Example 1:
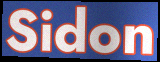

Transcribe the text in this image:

Sidon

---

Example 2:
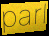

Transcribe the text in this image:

parl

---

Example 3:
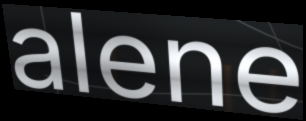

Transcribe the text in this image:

alene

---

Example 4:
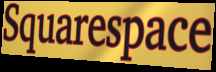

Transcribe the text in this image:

Squarespace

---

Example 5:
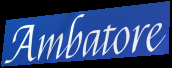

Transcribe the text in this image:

Ambatore